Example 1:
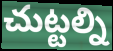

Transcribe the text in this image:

చుట్టల్ని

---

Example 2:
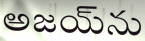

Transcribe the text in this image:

అజయ్‌ను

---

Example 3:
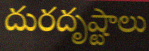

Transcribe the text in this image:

దురదృష్టాలు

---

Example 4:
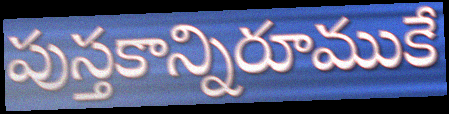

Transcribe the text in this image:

పుస్తకాన్నిరూముకే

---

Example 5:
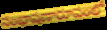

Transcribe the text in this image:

సంభాషణారూపంలో